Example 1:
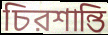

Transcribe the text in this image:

চিরশান্তি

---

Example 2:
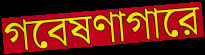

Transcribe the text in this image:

গবেষণাগারে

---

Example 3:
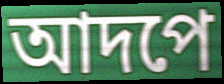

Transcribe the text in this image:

আদপে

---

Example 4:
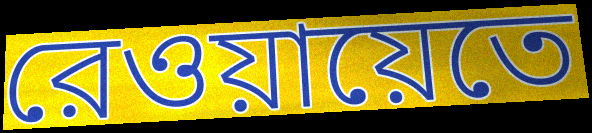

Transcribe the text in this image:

রেওয়ায়েতে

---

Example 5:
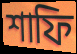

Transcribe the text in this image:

শাফি